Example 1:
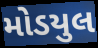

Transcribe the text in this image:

મોડયુલ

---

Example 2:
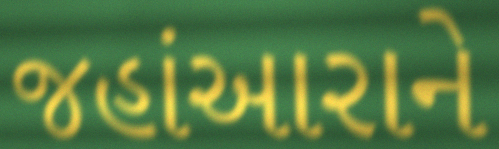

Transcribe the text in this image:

જહાંઆરાને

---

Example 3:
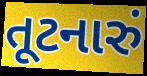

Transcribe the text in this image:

તૂટનારું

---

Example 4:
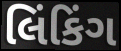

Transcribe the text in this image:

લિંકિંગ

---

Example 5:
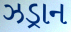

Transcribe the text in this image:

ઝડ્રાન